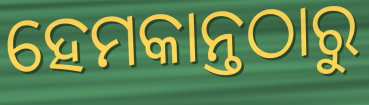
ହେମକାନ୍ତଠାରୁ